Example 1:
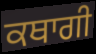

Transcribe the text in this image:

ਕਥਾਗੀ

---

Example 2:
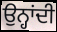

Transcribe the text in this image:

ਉਨ੍ਹਾਂਦੀ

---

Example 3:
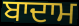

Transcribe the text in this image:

ਬਾਦਾਮ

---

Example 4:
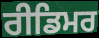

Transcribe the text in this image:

ਰੀਡਿਮਰ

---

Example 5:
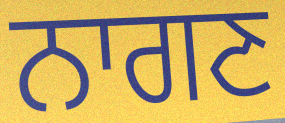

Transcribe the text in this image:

ਨਾਗਣ